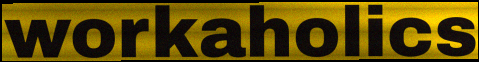
workaholics